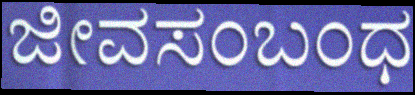
ಜೀವಸಂಬಂಧ